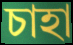
চাহা